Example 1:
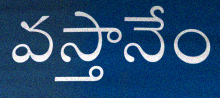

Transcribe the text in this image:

వస్తానేం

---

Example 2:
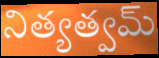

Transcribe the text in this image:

నిత్యత్వమ్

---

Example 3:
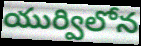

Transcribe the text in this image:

యుర్విలోన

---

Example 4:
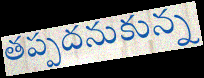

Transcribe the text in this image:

తప్పదనుకున్న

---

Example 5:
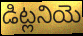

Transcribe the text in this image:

డిట్లనియె